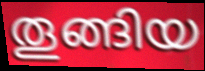
തൂങ്ങിയ